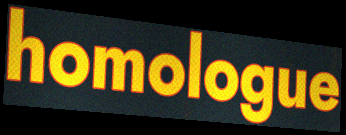
homologue